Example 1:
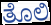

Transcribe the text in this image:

ತೊಲಿ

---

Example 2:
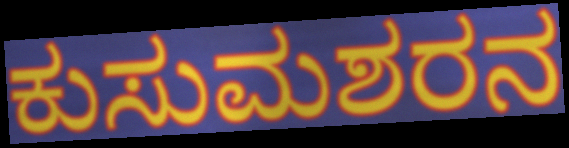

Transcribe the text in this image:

ಕುಸುಮಶರನ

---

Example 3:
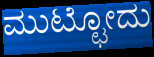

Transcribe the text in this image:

ಮುಟ್ಟೋದು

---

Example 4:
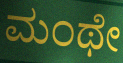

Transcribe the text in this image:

ಮಂಥೇ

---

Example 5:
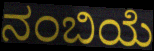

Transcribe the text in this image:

ನಂಬಿಯೆ